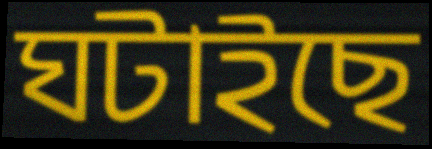
ঘটাইছে